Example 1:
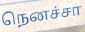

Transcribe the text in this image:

நெனச்சா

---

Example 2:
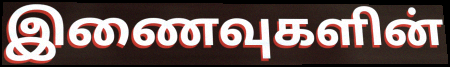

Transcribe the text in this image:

இணைவுகளின்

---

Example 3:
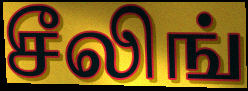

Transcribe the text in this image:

சீலிங்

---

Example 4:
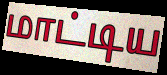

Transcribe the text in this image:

மாட்டிய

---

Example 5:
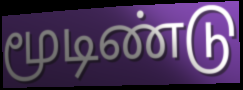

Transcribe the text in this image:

மூடிண்டு